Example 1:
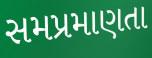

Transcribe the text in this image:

સમપ્રમાણતા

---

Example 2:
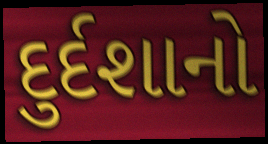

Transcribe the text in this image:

દુર્દશાનો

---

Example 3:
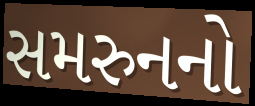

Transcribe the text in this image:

સમરુનનો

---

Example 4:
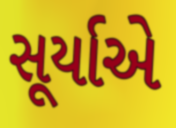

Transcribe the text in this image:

સૂર્યાએ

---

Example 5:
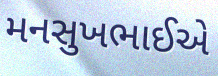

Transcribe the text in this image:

મનસુખભાઈએ